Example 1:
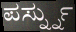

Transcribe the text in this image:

ಪರ್ಸ್ನ್ನು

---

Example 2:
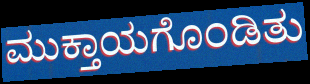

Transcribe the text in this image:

ಮುಕ್ತಾಯಗೊಂಡಿತು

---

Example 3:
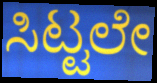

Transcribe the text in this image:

ಸಿಟ್ಟಲೇ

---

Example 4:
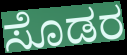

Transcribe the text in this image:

ಸೊಡರ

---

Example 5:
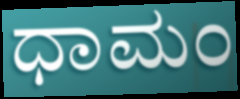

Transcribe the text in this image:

ಧಾಮಂ